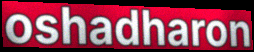
oshadharon